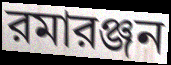
রমারঞ্জন